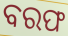
ବରଫ